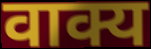
वाक्य